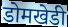
डोमखेडी